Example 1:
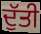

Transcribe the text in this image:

ਦੁੱਤੀ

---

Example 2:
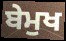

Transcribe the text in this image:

ਬੇਮੁਖ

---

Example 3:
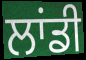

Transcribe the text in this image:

ਲਾਂਡੀ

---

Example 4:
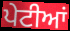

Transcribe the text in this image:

ਪੇਟੀਆਂ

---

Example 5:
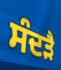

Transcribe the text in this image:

ਸੰਦੜੈ